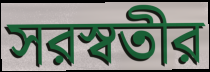
সরস্বতীর